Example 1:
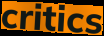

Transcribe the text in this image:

critics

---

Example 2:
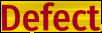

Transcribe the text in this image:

Defect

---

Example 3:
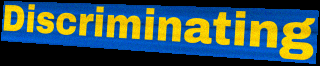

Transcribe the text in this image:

Discriminating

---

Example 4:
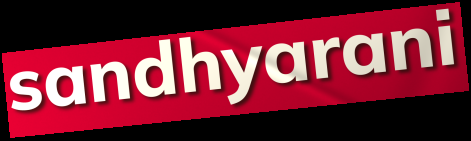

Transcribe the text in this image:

sandhyarani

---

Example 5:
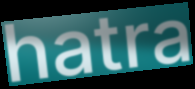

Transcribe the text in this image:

hatra